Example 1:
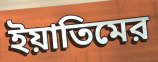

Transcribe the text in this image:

ইয়াতিমের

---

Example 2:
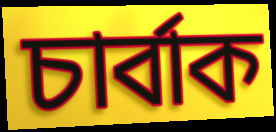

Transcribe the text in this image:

চার্বাক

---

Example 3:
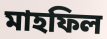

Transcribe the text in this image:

মাহফিল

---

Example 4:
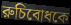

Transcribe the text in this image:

রুচিবোধকে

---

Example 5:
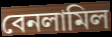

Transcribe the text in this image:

বেনলামিল